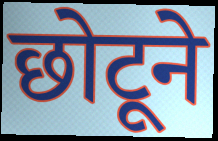
छोटूने